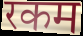
रकम